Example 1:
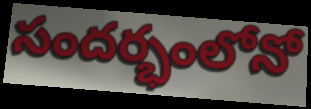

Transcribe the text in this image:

సందర్భంలోనో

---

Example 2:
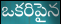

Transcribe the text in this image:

ఒకరిపైన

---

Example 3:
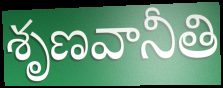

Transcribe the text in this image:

శృణవానీతి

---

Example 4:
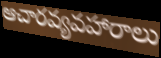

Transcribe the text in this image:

ఆచారవ్యవహారాలు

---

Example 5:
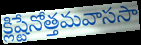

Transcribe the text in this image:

క్లిష్టేనోత్తమవాససా